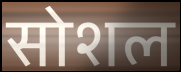
सोशल